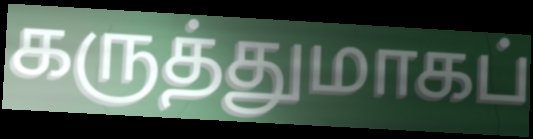
கருத்துமாகப்